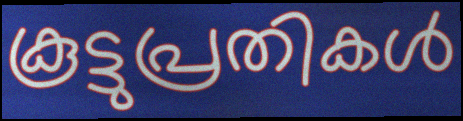
കൂട്ടുപ്രതികൾ